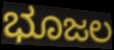
ಭೂಜಲ